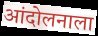
आंदोलनाला